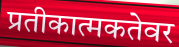
प्रतीकात्मकतेवर